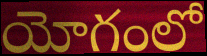
యోగంలో